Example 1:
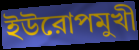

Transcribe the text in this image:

ইউরোপমুখী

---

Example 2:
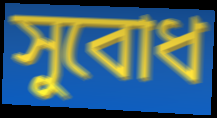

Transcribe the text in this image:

সুবোধ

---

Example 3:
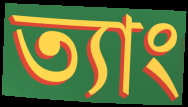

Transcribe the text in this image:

ত্যাং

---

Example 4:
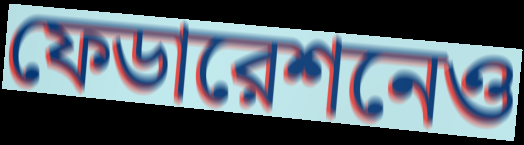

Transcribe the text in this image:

ফেডারেশনেও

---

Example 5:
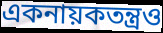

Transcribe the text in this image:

একনায়কতন্ত্রও